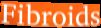
Fibroids